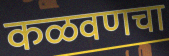
कळवणचा